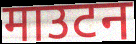
माउटन